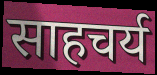
साहचर्य